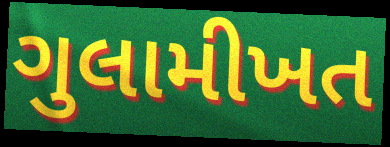
ગુલામીખત